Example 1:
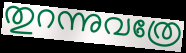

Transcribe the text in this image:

തുറന്നുവത്രേ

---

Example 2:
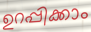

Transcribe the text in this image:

ഉറപ്പിക്കാം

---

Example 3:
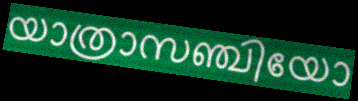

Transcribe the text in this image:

യാത്രാസഞ്ചിയോ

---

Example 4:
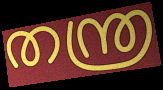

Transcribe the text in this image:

തന്ത്ര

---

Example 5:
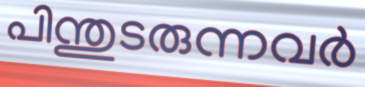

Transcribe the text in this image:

പിന്തുടരുന്നവർ